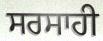
ਸਰਸਾਹੀ